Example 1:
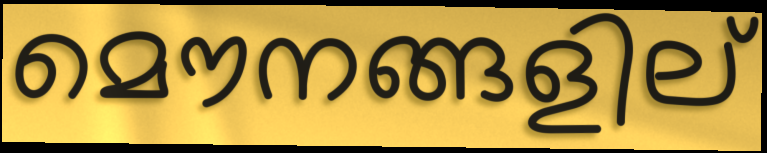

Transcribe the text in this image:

മൌനങ്ങളില്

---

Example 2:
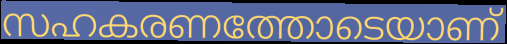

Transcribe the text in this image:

സഹകരണത്തോടെയാണ്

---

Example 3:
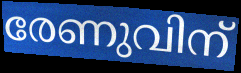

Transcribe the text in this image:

രേണുവിന്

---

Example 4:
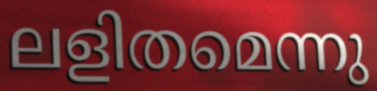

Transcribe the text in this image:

ലളിതമെന്നു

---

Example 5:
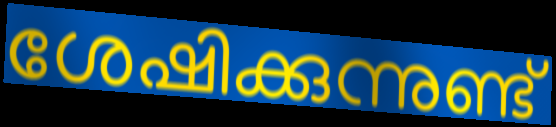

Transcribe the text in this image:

ശേഷിക്കുന്നുണ്ട്